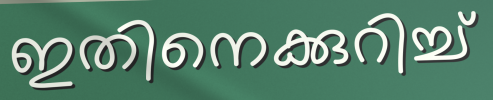
ഇതിനെക്കുറിച്ച്